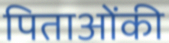
पिताओंकी